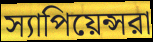
স্যাপিয়েন্সরা